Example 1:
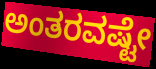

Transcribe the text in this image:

ಅಂತರವಷ್ಟೇ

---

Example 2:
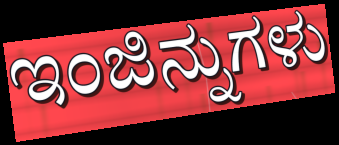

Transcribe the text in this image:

ಇಂಜಿನ್ನುಗಳು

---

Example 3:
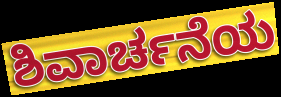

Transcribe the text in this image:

ಶಿವಾರ್ಚನೆಯ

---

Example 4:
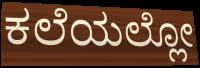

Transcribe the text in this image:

ಕಲೆಯಲ್ಲೋ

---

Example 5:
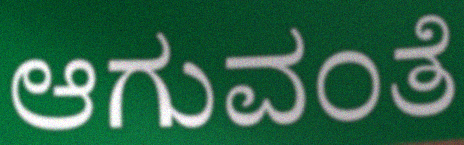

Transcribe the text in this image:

ಆಗುವಂತೆ